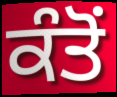
ਕੰਤੋਂ